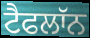
ਟੈਫਲਾੱਨ